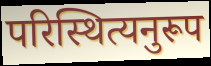
परिस्थित्यनुरूप